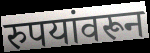
रुपयांवरून